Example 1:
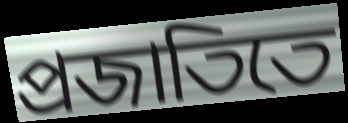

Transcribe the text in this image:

প্রজাতিতে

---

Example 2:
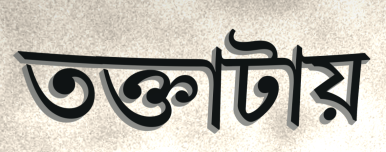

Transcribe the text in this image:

তক্তাটায়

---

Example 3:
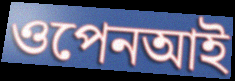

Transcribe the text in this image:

ওপেনআই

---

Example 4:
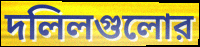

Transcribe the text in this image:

দলিলগুলোর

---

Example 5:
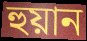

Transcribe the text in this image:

হুয়ান